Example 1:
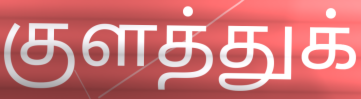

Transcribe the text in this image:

குளத்துக்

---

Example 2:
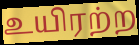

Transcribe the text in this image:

உயிரற்ற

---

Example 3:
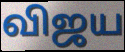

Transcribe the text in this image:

விஜய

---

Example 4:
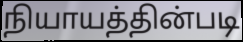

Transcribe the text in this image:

நியாயத்தின்படி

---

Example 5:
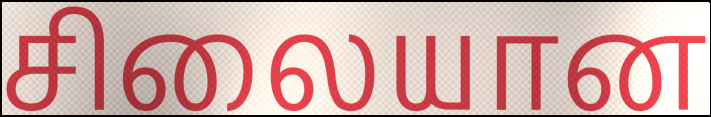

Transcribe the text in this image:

சிலையான